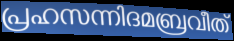
പ്രഹസന്നിദമബ്രവീത്